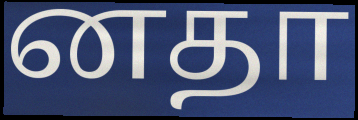
னதா